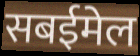
सबईमेल